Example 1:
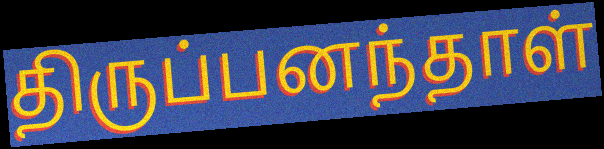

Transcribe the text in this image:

திருப்பனந்தாள்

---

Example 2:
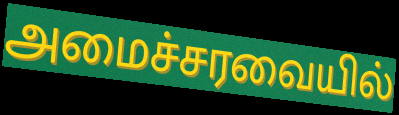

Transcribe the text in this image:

அமைச்சரவையில்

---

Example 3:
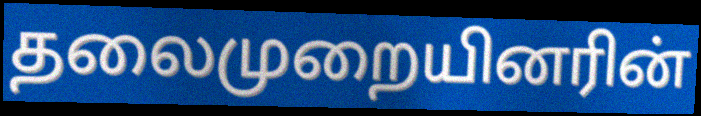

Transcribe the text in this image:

தலைமுறையினரின்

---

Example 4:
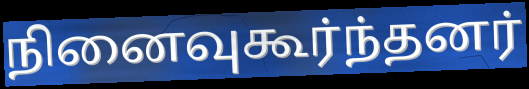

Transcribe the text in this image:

நினைவுகூர்ந்தனர்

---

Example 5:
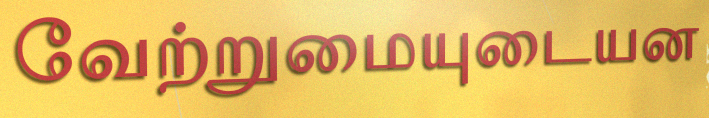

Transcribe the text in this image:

வேற்றுமையுடையன